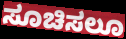
ಸೂಚಿಸಲೂ